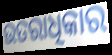
ଉତରାଧିକାର